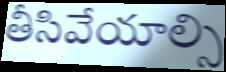
తీసివేయాల్సి